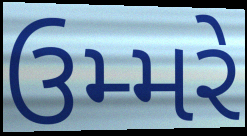
ઉમ્મરે